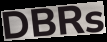
DBRs